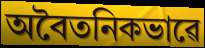
অবৈতনিকভাৱে